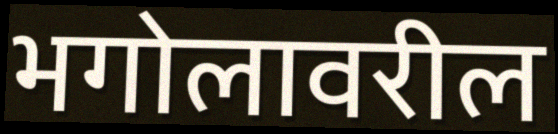
भगोलावरील